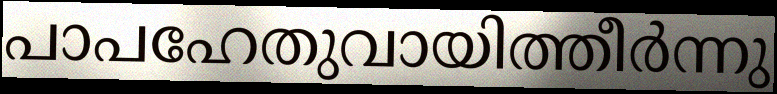
പാപഹേതുവായിത്തീർന്നു